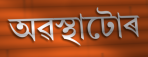
অৱস্থাটোৰ